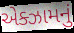
એક્ઝામનું